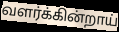
வளர்க்கின்றாய்